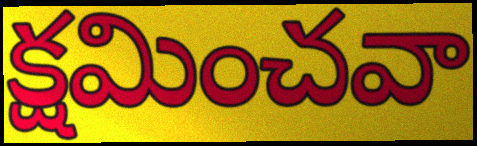
క్షమించవా